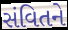
સંવિતને